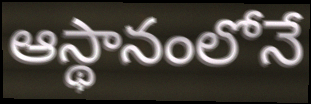
ఆస్థానంలోనే